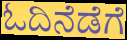
ಓದಿನೆಡೆಗೆ